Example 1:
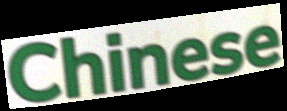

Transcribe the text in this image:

Chinese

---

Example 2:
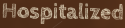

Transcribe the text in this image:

Hospitalized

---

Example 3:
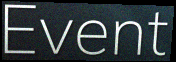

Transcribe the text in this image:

Event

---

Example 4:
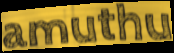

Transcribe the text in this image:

amuthu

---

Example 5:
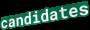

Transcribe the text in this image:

candidates